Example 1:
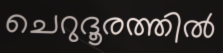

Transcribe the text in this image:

ചെറുദൂരത്തിൽ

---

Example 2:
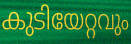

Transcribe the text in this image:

കുടിയേറ്റവും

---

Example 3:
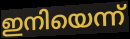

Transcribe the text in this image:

ഇനിയെന്ന്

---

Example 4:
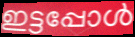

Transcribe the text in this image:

ഇട്ടപ്പോൾ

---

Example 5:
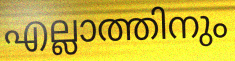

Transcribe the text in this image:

എല്ലാത്തിനും